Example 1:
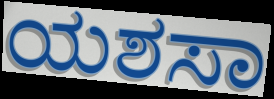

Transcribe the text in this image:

ಯಶಸಾ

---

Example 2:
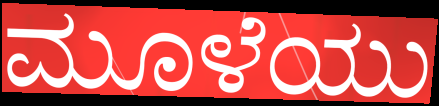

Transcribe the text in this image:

ಮೂಳೆಯು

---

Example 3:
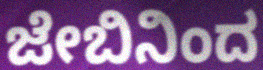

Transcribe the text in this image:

ಜೇಬಿನಿಂದ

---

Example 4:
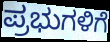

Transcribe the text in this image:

ಪ್ರಭುಗಳಿಗೆ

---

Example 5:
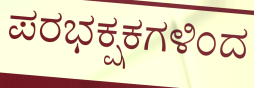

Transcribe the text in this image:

ಪರಭಕ್ಷಕಗಳಿಂದ